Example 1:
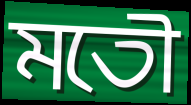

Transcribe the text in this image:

মতৌ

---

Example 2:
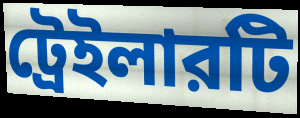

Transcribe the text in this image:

ট্রেইলারটি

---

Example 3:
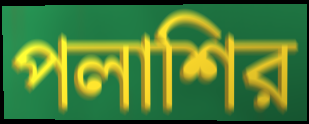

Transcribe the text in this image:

পলাশির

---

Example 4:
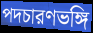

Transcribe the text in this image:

পদচারণভঙ্গি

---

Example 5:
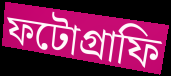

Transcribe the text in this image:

ফটোগ্রাফি